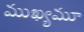
ముఖ్యమూ